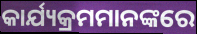
କାର୍ଯ୍ୟକ୍ରମମାନଙ୍କରେ